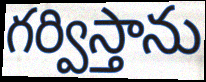
గర్విస్తాను